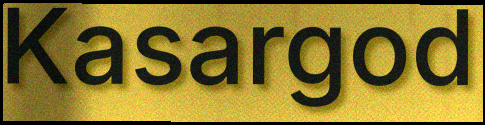
Kasargod